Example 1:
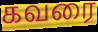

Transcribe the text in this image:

கவரை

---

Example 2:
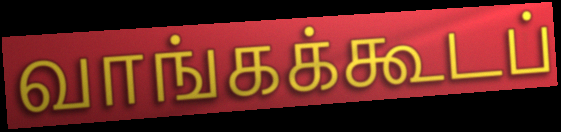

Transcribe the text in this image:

வாங்கக்கூடப்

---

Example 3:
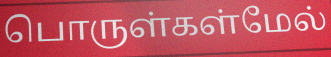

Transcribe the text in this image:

பொருள்கள்மேல்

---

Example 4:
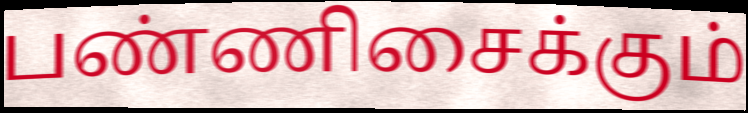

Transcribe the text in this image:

பண்ணிசைக்கும்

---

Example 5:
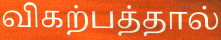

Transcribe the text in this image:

விகற்பத்தால்